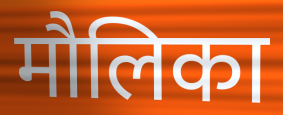
मौलिका